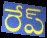
రేప్